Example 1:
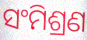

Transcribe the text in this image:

ସଂମିଶ୍ରଣ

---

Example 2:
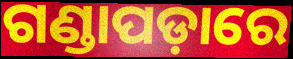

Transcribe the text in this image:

ଗଣ୍ଡାପଡ଼ାରେ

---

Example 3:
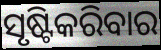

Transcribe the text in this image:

ସୃଷ୍ଟିକରିବାର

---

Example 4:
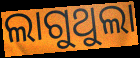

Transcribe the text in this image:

ଲାଗୁଥୁଲା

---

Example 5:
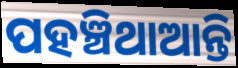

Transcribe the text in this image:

ପହଞ୍ଚିଥାଆନ୍ତି